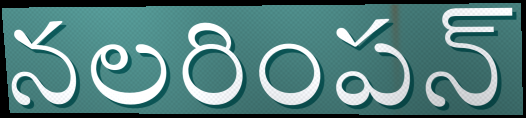
నలరింపన్